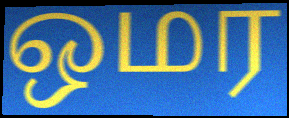
ஒமர